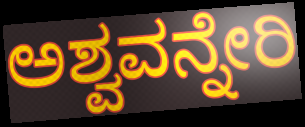
ಅಶ್ವವನ್ನೇರಿ